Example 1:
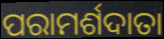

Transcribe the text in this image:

ପରାମର୍ଶଦାତା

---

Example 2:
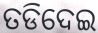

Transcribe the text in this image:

ତଡିଦେଇ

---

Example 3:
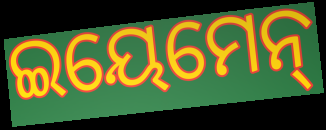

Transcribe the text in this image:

ଇୟେମେନ୍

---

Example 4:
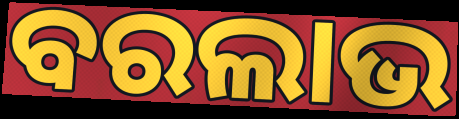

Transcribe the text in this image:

ବରଲାଭ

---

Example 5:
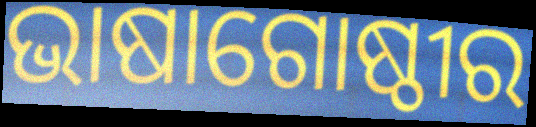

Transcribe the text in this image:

ଭାଷାଗୋଷ୍ଠୀର